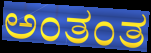
ಅಂತಂತ